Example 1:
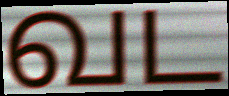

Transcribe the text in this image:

வட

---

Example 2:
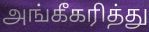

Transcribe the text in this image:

அங்கீகரித்து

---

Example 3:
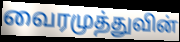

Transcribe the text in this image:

வைரமுத்துவின்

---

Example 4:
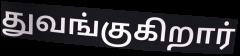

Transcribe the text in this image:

துவங்குகிறார்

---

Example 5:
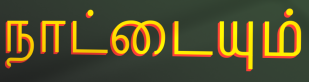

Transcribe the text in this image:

நாட்டையும்